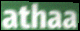
athaa